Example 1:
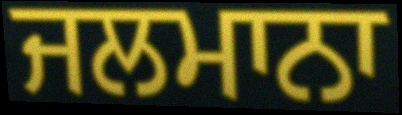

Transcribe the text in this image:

ਜਲਮਾਨਾ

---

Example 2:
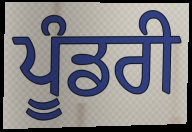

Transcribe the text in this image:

ਪੂੰਡਰੀ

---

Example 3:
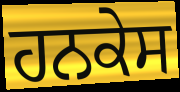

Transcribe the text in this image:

ਹਨਕੇਸ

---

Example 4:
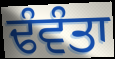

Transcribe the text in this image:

ਢੰਵੰਤਾ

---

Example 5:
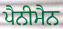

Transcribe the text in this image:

ਪੈਨੀਮੈਨ